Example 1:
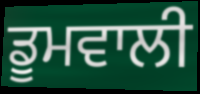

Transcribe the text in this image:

ਡੂਮਵਾਲੀ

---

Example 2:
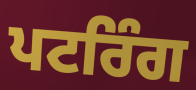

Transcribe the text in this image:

ਪਟਰਿੰਗ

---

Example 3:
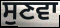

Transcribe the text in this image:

ਸੁਣਵਾ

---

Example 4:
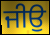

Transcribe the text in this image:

ਜੀਉ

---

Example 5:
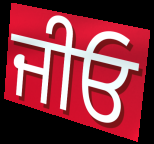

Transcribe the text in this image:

ਜੀਓ